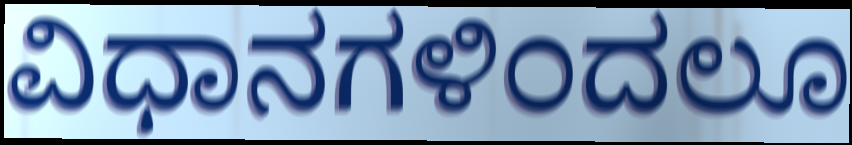
ವಿಧಾನಗಳಿಂದಲೂ